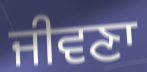
ਜੀਵਣਾ